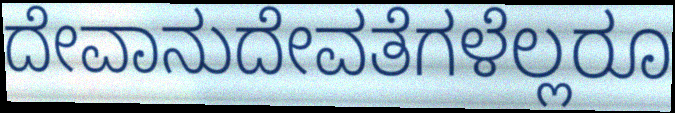
ದೇವಾನುದೇವತೆಗಳೆಲ್ಲರೂ